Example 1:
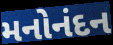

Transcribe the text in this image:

મનોનંદન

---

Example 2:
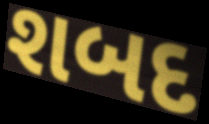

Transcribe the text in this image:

શબદ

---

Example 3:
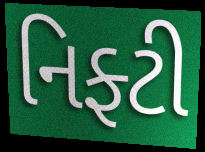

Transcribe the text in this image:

નિફ્ટી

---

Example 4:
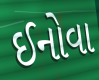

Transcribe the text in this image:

ઈનોવા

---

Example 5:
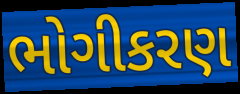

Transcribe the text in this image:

ભોગીકરણ